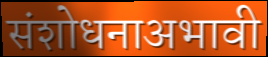
संशोधनाअभावी